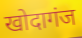
खोदागंज